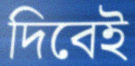
দিবেই